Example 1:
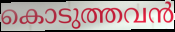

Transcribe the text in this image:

കൊടുത്തവൻ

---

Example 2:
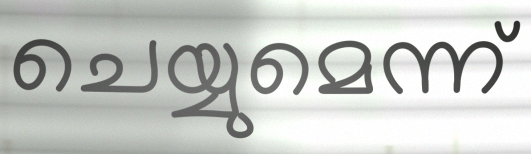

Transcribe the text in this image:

ചെയ്യുമെന്ന്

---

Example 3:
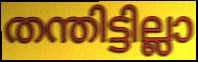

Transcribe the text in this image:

തന്തിട്ടില്ലാ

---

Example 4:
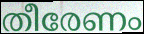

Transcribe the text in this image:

തീരേണം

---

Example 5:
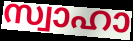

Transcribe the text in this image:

സ്വാഹാ